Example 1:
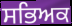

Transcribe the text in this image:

ਸਭਿਅਕ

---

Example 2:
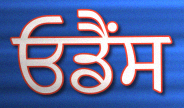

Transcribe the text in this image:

ਓਡੈਂਸ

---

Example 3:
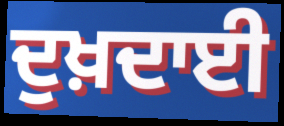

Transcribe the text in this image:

ਦੁਖ਼ਦਾਈ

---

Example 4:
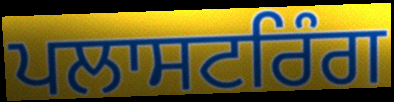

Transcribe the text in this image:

ਪਲਾਸਟਰਿੰਗ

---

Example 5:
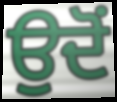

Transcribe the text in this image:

ਉਦੋੰ